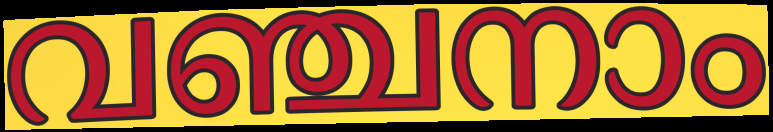
വഞ്ചനാം